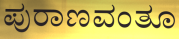
ಪುರಾಣವಂತೂ